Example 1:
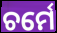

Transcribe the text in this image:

ଚର୍ମେ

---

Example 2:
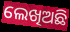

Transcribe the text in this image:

ଲେଖିଅଛି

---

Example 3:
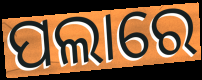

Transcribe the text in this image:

ପଲାରେ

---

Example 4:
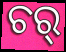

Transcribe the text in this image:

ଚର୍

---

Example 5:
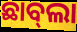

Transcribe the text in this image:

ଛାବ୍‍ଲା